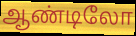
ஆண்டிலோ